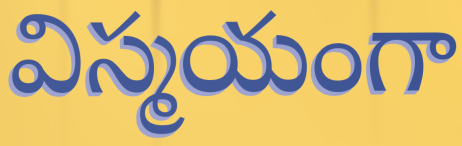
విస్మయంగా